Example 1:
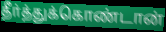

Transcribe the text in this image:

தீர்த்துக்கொண்டான்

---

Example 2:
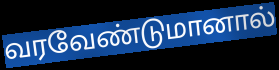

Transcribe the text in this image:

வரவேண்டுமானால்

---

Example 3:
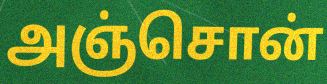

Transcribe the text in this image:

அஞ்சொன்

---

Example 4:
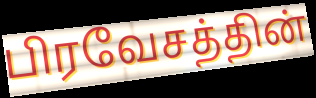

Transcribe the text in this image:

பிரவேசத்தின்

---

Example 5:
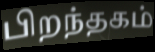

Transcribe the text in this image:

பிறந்தகம்